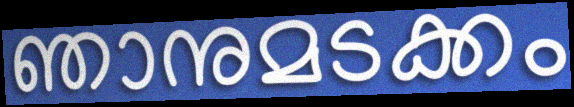
ഞാനുമടക്കം